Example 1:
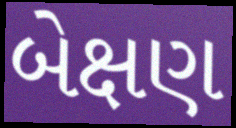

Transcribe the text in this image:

બેક્ષણ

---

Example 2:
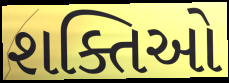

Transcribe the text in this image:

શક્તિઓ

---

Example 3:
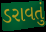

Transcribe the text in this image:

ડરાવતું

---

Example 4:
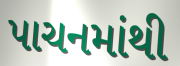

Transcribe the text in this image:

પાચનમાંથી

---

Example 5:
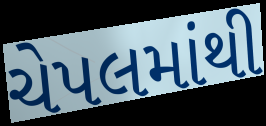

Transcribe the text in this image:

ચેપલમાંથી